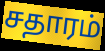
சதாரம்